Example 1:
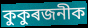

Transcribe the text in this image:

কুকুৰজনীক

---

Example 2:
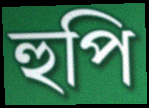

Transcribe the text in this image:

হুপি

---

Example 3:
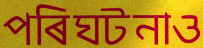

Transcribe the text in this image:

পৰিঘটনাও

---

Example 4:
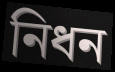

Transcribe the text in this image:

নিধন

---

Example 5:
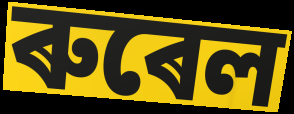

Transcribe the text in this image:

ৰুৰেল